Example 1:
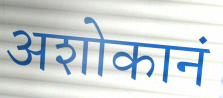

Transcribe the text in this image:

अशोकानं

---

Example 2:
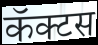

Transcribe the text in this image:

कॅक्टस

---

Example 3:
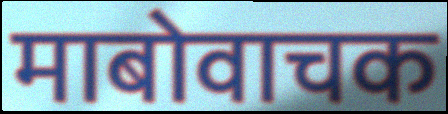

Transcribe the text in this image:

माबोवाचक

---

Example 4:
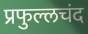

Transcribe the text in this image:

प्रफुल्लचंद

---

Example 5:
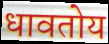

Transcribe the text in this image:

धावतोय